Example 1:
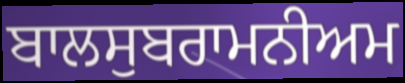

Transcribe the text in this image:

ਬਾਲਸੁਬਰਾਮਨੀਅਮ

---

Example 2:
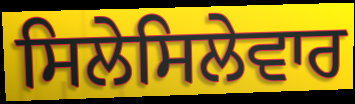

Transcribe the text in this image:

ਸਿਲੇਸਿਲੇਵਾਰ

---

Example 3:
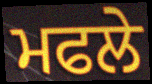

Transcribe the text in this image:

ਮਫਲੇ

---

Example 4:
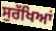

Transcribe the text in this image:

ਸੁਰੱਖਿਆਂ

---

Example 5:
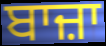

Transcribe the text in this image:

ਬਾਜ਼ਾ